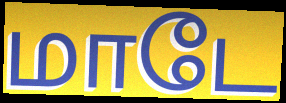
மாடே